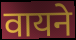
वायने